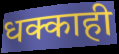
धक्काही